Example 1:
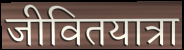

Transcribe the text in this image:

जीवितयात्रा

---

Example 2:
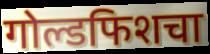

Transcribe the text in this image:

गोल्डफिशचा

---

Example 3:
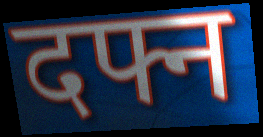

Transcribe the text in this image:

दफ्न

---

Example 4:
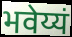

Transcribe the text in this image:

भवेय्यं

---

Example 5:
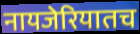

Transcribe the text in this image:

नायजेरियातच